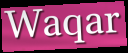
Waqar